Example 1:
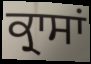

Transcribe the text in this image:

ਕ੍ਰਾਸਾਂ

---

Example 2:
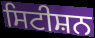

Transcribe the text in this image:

ਸਿਟੀਸ਼ਨ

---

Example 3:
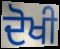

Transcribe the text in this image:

ਦੋਖੀ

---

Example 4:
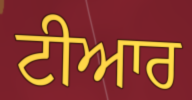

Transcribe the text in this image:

ਟੀਆਰ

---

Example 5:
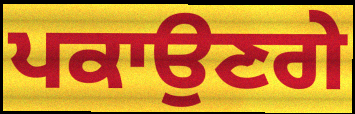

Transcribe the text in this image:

ਪਕਾਉਣਗੇ